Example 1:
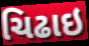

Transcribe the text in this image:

ચિઢાઇ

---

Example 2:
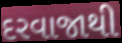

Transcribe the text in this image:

દરવાજાથી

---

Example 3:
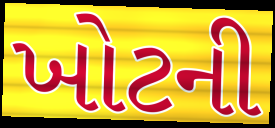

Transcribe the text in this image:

ખોટની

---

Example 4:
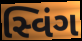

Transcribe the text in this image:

સ્વિંગ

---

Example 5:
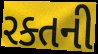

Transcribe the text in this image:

રક્તની